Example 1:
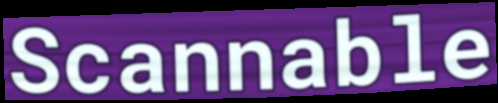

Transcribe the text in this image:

Scannable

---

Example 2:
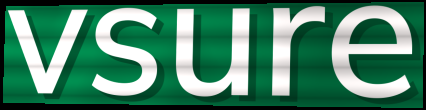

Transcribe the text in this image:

vsure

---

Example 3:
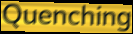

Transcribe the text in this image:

Quenching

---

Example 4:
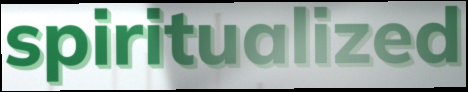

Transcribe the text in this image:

spiritualized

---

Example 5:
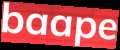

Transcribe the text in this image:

baape